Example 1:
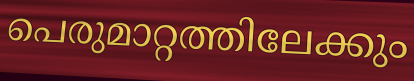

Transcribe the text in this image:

പെരുമാറ്റത്തിലേക്കും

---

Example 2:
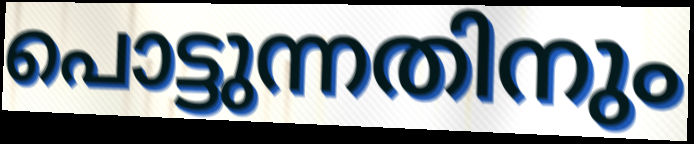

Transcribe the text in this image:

പൊട്ടുന്നതിനും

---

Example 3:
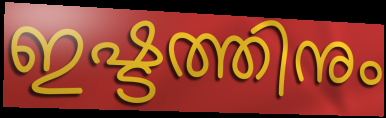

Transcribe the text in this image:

ഇഷ്ടത്തിനും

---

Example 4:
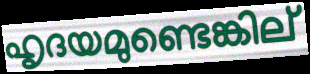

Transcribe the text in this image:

ഹൃദയമുണ്ടെങ്കില്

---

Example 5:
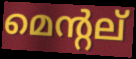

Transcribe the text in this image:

മെന്റല്